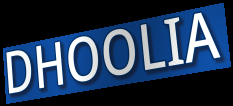
DHOOLIA